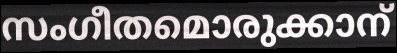
സംഗീതമൊരുക്കാന്